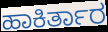
ಹಾಕಿರ್ತಾರ